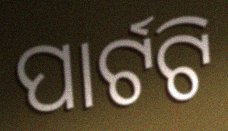
ପାର୍ଟଟି